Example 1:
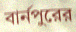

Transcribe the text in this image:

বার্নপুরের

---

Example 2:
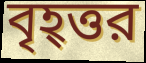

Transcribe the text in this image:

বৃহ্ত্তর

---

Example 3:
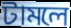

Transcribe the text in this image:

টামলে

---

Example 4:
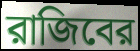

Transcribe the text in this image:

রাজিবের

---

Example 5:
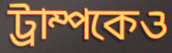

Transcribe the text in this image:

ট্রাম্পকেও